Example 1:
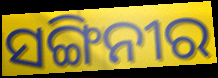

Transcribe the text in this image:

ସଙ୍ଗିନୀର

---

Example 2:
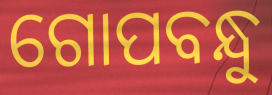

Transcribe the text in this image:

ଗୋପବନ୍ଧୁ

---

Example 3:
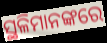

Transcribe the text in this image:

ସ୍ଥଳିମାନଙ୍କରେ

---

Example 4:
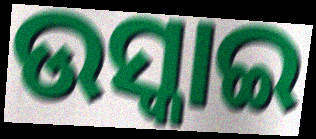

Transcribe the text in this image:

ଉସ୍କାଇ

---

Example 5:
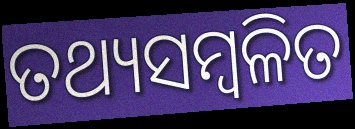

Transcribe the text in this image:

ତଥ୍ୟସମ୍ୱଳିତ